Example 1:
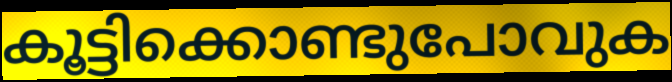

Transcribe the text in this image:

കൂട്ടിക്കൊണ്ടുപോവുക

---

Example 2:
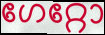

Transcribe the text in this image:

ഗേറ്റോ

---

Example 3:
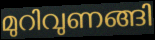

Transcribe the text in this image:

മുറിവുണങ്ങി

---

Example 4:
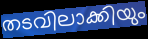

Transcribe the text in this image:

തടവിലാക്കിയും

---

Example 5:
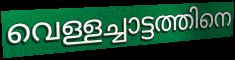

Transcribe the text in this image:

വെള്ളച്ചാട്ടത്തിനെ